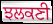
ਝਲਕਣੀ